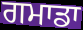
ਗਮਾਡਾ